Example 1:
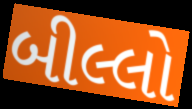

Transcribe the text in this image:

બીલ્લો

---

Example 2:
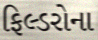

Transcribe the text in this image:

ફિલ્ડરોના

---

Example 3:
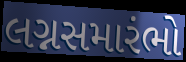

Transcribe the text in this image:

લગ્નસમારંભો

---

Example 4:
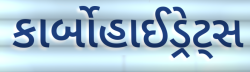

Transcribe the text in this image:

કાર્બોહાઈડ્રેટ્સ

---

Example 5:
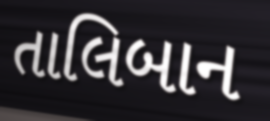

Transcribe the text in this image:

તાલિબાન